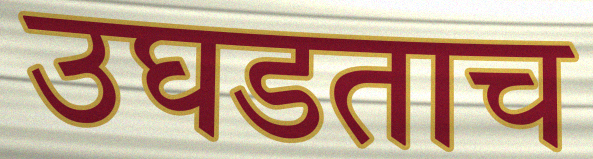
उघडताच